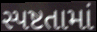
સ્પષ્ટતામાં